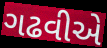
ગઢવીએ